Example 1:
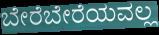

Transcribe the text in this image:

ಬೇರೆಬೇರೆಯವಲ್ಲ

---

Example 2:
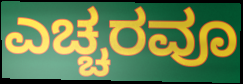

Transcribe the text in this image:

ಎಚ್ಚರವೂ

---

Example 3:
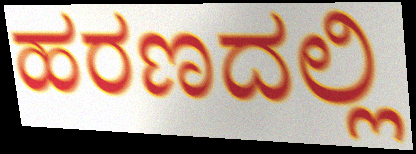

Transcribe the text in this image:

ಹರಣದಲ್ಲಿ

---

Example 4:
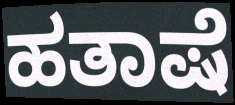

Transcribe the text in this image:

ಹತಾಷೆ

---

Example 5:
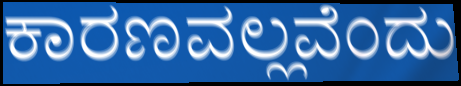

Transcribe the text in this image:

ಕಾರಣವಲ್ಲವೆಂದು